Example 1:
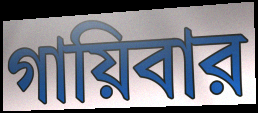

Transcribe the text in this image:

গায়িবার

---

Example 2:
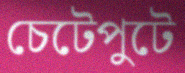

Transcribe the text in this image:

চেটেপুটে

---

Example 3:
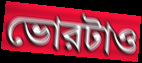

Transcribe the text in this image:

ভোরটাও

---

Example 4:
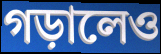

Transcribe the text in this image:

গড়ালেও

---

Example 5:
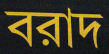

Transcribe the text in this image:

বরাদ